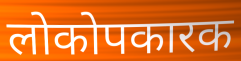
लोकोपकारक